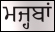
ਮਜ੍ਹਬਾਂ